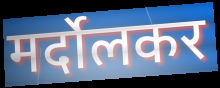
मर्दोलकर